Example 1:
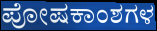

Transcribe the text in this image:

ಪೋಷಕಾಂಶಗಳ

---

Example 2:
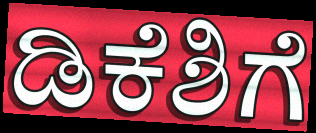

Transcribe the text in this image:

ಡಿಕೆಶಿಗೆ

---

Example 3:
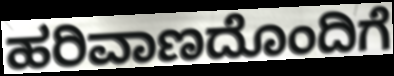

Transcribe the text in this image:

ಹರಿವಾಣದೊಂದಿಗೆ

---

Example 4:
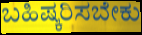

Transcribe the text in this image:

ಬಹಿಷ್ಕರಿಸಬೇಕು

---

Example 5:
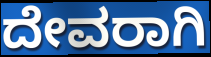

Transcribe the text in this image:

ದೇವರಾಗಿ